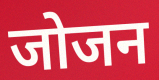
जोजन